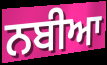
ਨਬੀਆ